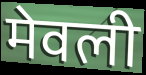
मेवली